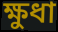
ক্ষুধা